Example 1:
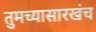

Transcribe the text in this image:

तुमच्यासारखंच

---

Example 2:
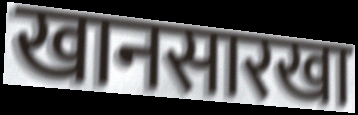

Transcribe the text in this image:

खानसारखा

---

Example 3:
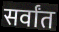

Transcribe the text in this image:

सर्वांत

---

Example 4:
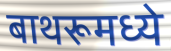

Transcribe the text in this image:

बाथरूमध्ये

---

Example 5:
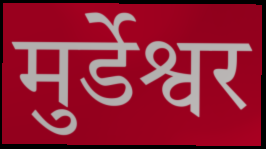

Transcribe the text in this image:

मुर्डेश्वर